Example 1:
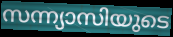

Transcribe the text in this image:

സന്ന്യാസിയുടെ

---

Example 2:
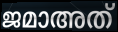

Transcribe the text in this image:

ജമാഅത്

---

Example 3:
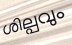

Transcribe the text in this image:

ശില്പവും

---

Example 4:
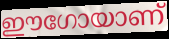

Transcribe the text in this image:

ഈഗോയാണ്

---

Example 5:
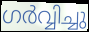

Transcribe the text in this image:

ഗർവ്വിച്ചു